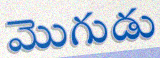
మొగుడు